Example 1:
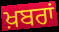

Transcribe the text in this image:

ਖ਼ਬਰਾਂ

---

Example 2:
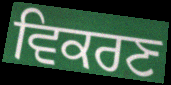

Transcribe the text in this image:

ਵਿਕਰਣ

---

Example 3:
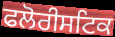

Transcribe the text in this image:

ਫਲੋਰੀਸਟਿਕ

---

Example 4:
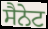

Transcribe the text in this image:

ਸੈਨੇਟ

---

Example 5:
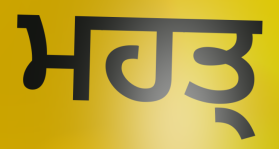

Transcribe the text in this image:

ਮਹਤ੍